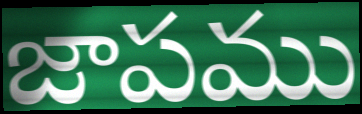
జాపము